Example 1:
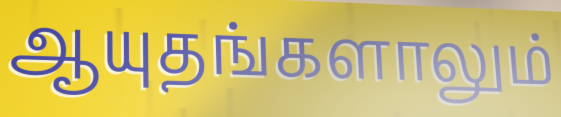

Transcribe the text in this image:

ஆயுதங்களாலும்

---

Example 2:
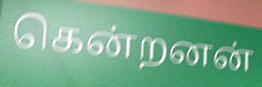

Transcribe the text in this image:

கென்றனன்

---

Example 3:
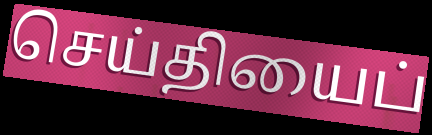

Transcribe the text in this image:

செய்தியைப்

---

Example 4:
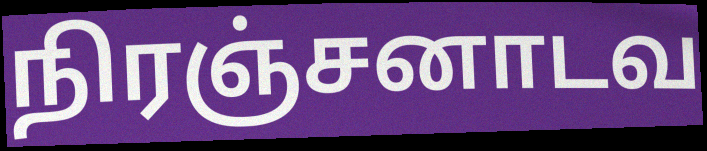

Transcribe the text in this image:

நிரஞ்சனாடவ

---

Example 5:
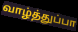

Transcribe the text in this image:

வாழ்த்துப்பா